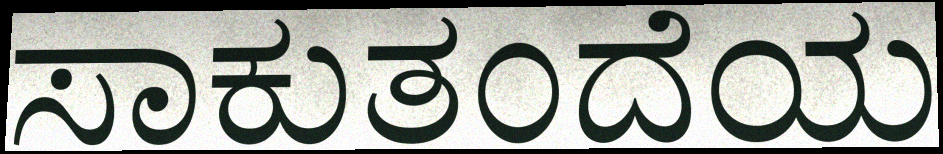
ಸಾಕುತಂದೆಯ